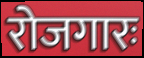
रोजगारः